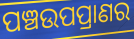
ପଞ୍ଚଉପପ୍ରାଣର